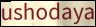
ushodaya